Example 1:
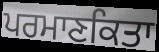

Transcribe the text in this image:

ਪਰਮਾਣਕਿਤਾ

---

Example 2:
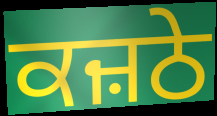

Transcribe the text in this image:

ਕਜ਼ਠੇ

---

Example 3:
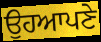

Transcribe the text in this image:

ਉਹਆਪਣੇ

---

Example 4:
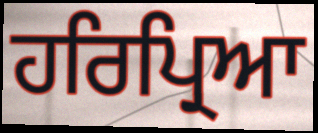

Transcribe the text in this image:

ਹਰਿਪ੍ਰਿਆ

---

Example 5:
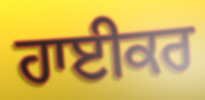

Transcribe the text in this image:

ਹਾਈਕਰ